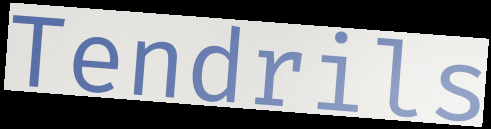
Tendrils